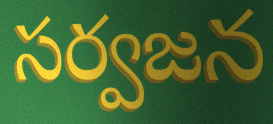
సర్వజన